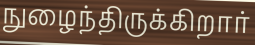
நுழைந்திருக்கிறார்